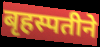
बृहस्पतीने